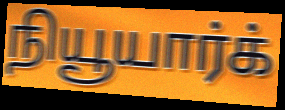
நியூயார்க்